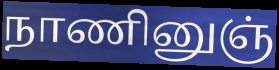
நாணினுஞ்